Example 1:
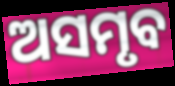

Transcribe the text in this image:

ଅସମୃବ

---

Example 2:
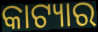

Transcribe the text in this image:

କାଟ୍ୟାର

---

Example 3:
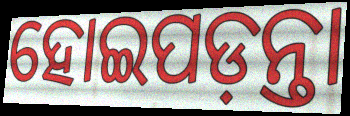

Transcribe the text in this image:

ହୋଇପଡ଼ନ୍ତା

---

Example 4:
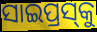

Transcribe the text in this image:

ସାଇପ୍ରସ୍‌କୁ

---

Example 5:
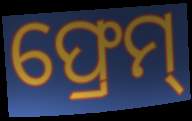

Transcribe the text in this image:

ଫ୍ରେମ୍